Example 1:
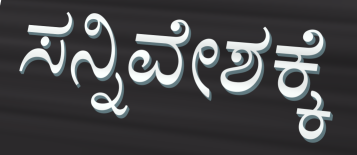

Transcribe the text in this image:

ಸನ್ನಿವೇಶಕ್ಕೆ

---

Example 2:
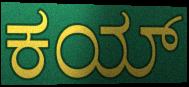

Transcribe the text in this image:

ಕಯ್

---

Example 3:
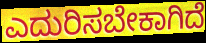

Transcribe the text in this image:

ಎದುರಿಸಬೇಕಾಗಿದೆ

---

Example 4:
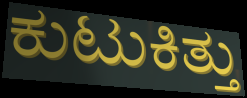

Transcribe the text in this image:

ಕುಟುಕಿತ್ತು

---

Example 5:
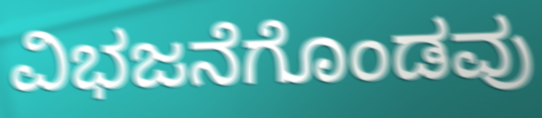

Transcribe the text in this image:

ವಿಭಜನೆಗೊಂಡವು